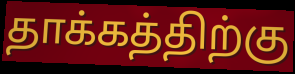
தாக்கத்திற்கு